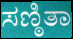
ಸಣ್ಠಿತಾ